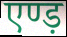
एण्ड़